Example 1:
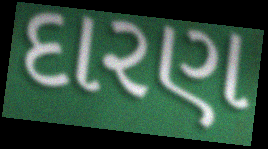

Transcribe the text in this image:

દારણ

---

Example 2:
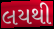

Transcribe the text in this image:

લયથી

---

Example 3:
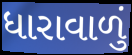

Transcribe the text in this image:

ધારાવાળું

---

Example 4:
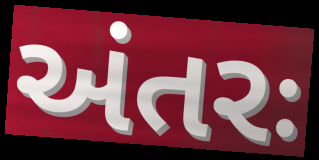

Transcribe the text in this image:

અંતરઃ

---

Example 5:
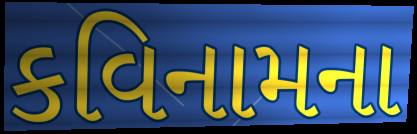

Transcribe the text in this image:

કવિનામના